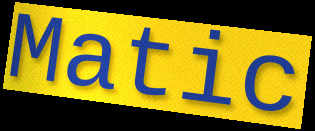
Matic